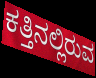
ಕತ್ತಿನಲ್ಲಿರುವ